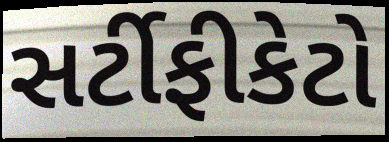
સર્ટીફીકેટો